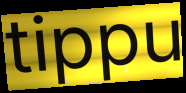
tippu